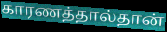
காரணத்தால்தான்